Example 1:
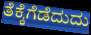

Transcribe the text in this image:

ತೆಕ್ಕೆಗೆಡೆದುದು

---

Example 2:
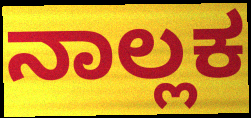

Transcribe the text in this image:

ನಾಲ್ಲಕ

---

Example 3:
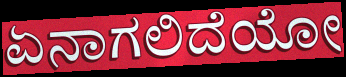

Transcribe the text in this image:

ಏನಾಗಲಿದೆಯೋ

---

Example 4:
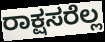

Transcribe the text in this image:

ರಾಕ್ಷಸರೆಲ್ಲ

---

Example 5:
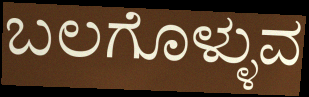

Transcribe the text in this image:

ಬಲಗೊಳ್ಳುವ